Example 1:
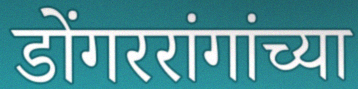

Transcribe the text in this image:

डोंगररांगांच्या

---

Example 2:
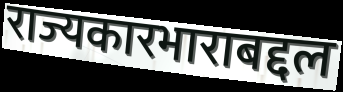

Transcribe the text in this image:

राज्यकारभाराबद्दल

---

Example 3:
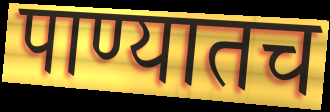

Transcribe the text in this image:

पाण्यातच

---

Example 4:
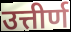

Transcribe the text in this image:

उत्तीर्ण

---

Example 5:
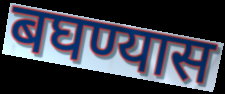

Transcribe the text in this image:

बघण्यास